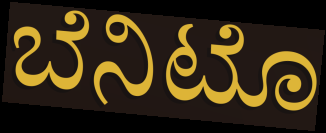
ಬೆನಿಟೊ